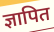
ज्ञापित